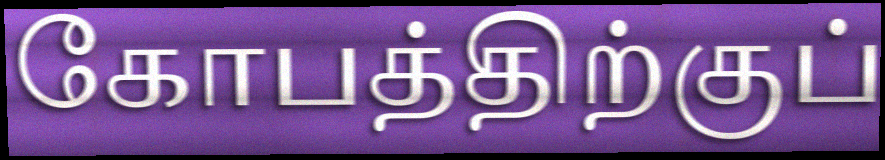
கோபத்திற்குப்